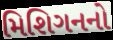
મિશિગનનો